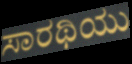
ಸಾರಥಿಯು